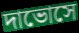
দাভোসে